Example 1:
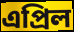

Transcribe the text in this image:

এপ্রিল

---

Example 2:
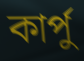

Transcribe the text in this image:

কার্পু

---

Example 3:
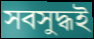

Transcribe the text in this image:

সবসুদ্ধই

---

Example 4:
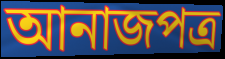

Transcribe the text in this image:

আনাজপত্র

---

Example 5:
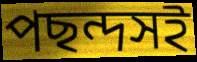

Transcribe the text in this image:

পছন্দসই